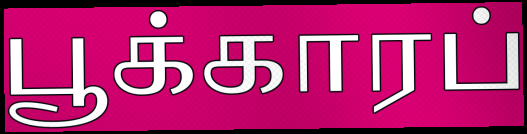
பூக்காரப்